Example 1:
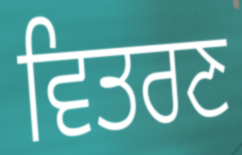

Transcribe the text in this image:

ਵਿਤਰਣ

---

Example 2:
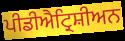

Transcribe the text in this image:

ਪੀਡੀਐਟ੍ਰਿਸ਼ੀਅਨ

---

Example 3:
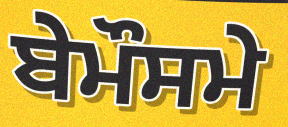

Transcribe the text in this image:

ਬੇਮੌਸਮੇ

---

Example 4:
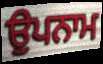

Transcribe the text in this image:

ਉਪਨਾਮ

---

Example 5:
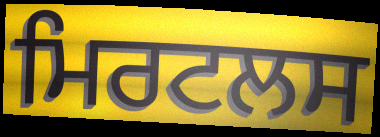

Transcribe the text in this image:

ਮਿਰਟਲਸ